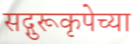
सद्गुरूकृपेच्या